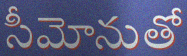
సీమోనుతో